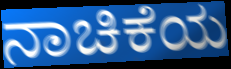
ನಾಚಿಕೆಯ